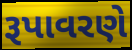
રૂપાવરણે